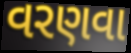
વરણવા